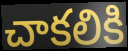
చాకలికి